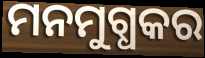
ମନମୁଗ୍ଧକର